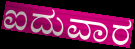
ಐದುವಾರ